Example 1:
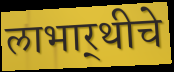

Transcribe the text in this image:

लाभार्थीचे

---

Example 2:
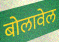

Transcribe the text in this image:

बोलावेल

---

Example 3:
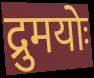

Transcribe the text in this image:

द्रुमयोः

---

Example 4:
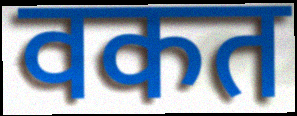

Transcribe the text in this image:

वकत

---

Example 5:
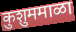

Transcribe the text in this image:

कुशुममाळा